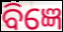
ବିଜ୍ଞେ